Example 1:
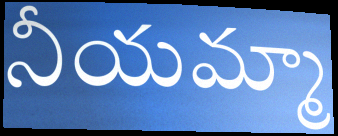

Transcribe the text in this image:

నీయమ్మా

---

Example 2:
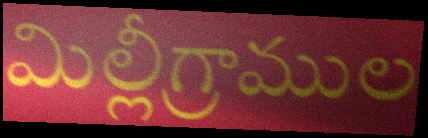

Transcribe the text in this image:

మిల్లీగ్రాముల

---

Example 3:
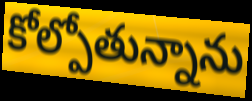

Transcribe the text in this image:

కోల్పోతున్నాను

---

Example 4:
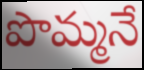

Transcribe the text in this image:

పొమ్మనే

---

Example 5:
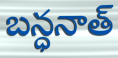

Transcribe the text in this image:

బన్ధనాత్